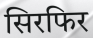
सिरफिर